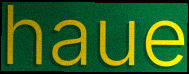
haue